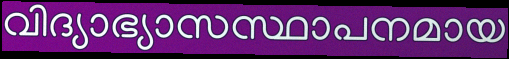
വിദ്യാഭ്യാസസ്ഥാപനമായ